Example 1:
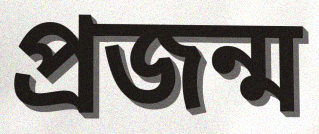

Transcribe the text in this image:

প্ৰজন্ম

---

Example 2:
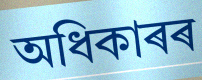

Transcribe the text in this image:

অধিকাৰৰ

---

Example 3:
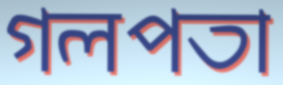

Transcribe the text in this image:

গলপতা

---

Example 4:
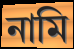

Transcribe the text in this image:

নামি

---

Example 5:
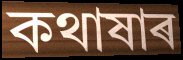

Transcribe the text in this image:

কথাষাৰ